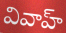
వివాహ్